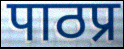
पाठप्र